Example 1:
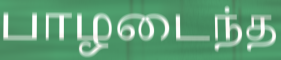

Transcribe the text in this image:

பாழடைந்த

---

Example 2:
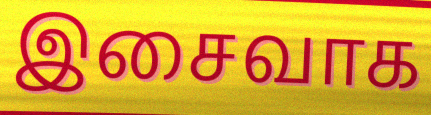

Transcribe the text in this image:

இசைவாக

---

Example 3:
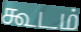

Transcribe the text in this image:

கூடம்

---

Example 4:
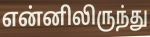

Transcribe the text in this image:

என்னிலிருந்து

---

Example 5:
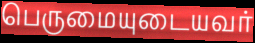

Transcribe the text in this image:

பெருமையுடையவர்